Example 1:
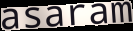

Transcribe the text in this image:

asaram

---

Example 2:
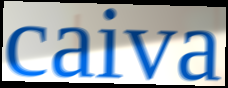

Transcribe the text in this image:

caiva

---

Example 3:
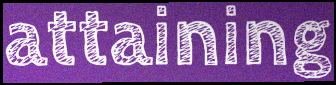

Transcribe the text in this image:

attaining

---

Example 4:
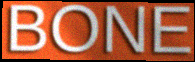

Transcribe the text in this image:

BONE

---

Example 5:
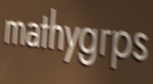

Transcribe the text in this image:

mathygrps